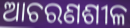
ଆଚରଣଶୀଳ